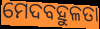
ମେଦବହୁଳତା